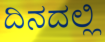
ದಿನದಲ್ಲಿ